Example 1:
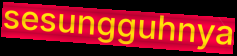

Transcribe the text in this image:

sesungguhnya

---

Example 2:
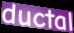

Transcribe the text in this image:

ductal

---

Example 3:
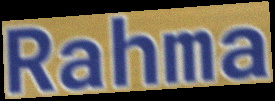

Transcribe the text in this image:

Rahma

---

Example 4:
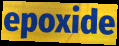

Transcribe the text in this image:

epoxide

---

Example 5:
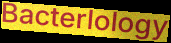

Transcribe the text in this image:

Bacterlology